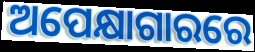
ଅପେକ୍ଷାଗାରରେ